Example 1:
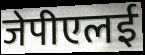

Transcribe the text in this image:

जेपीएलई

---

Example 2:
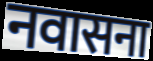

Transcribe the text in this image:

नवासना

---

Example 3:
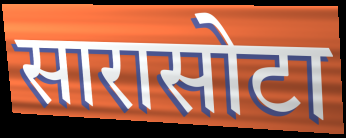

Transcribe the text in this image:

सारासोटा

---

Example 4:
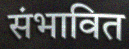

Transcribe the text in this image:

संभावित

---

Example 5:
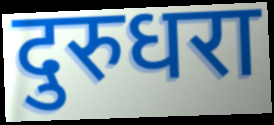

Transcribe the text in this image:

दुरुधरा